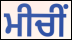
ਮੀਚੀਂ